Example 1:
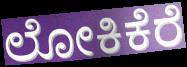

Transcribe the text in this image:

ಲೋಕಿಕೆರೆ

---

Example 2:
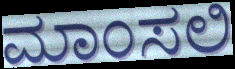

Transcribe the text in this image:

ಮಾಂಸಲಿ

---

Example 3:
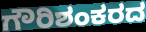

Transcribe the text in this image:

ಗೌರಿಶಂಕರದ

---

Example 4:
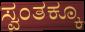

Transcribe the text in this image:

ಸ್ವಂತಕ್ಕೂ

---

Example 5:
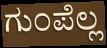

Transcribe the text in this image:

ಗುಂಪೆಲ್ಲ